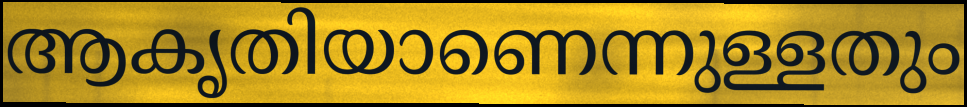
ആകൃതിയാണെന്നുള്ളതും